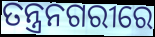
ତନ୍ତ୍ରନଗରୀରେ